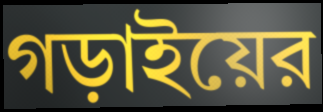
গড়াইয়ের